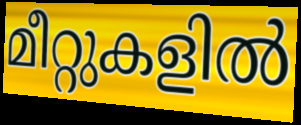
മീറ്റുകളിൽ